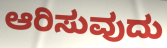
ಆರಿಸುವುದು